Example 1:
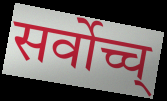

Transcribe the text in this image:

सर्वोच्च्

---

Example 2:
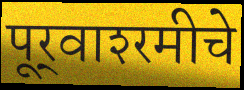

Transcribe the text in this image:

पूर्वाश्रमीचे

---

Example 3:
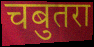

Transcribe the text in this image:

चबुतरा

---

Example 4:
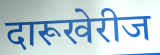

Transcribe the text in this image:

दारूखेरीज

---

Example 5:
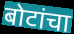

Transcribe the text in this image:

बोटांचा